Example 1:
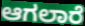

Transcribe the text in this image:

ಆಗಲಾರೆ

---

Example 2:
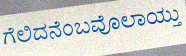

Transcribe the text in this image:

ಗೆಲಿದನೆಂಬವೊಲಾಯ್ತು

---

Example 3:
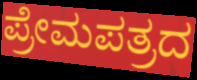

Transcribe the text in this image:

ಪ್ರೇಮಪತ್ರದ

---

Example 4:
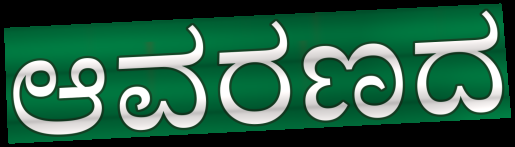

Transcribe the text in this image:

ಆವರಣದ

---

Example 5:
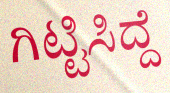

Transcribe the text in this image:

ಗಿಟ್ಟಿಸಿದ್ದೆ